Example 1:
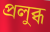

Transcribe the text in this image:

প্রলুব্ধ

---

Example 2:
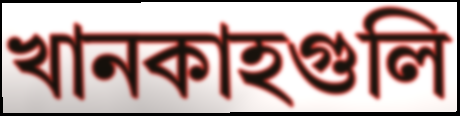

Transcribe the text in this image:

খানকাহগুলি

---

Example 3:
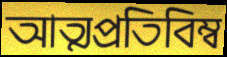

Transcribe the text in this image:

আত্মপ্রতিবিম্ব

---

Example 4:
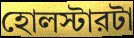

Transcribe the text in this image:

হোলস্টারটা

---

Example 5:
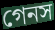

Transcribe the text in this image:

গেনস